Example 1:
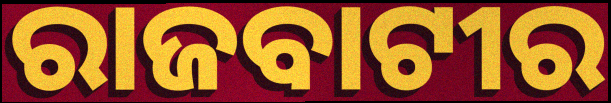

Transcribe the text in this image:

ରାଜବାଟୀର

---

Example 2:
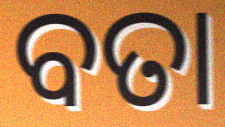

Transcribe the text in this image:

ବତା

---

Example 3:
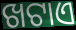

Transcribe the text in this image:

ଖଟାଏ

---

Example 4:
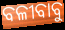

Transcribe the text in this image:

ବଳୀବାବୁ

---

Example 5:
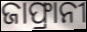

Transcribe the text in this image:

ଜାଫ୍ରାନୀ